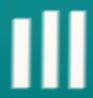
Ill